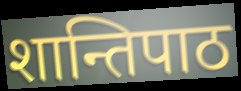
शान्तिपाठ